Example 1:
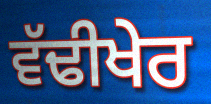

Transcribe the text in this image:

ਵੱਢੀਖੇਰ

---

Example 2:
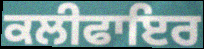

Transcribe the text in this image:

ਕਲੀਫਾਇਰ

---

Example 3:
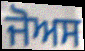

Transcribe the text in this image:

ਜੋਅਸ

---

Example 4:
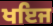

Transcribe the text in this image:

ਖਇਜ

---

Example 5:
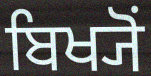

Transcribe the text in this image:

ਬਿਖ੍ਯੋਂ